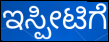
ಇಸ್ಪೀಟಿಗೆ